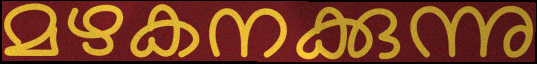
മഴകനക്കുന്നു